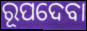
ରୂପଦେବା